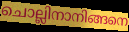
ചൊല്ലിനാനിങ്ങനെ